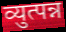
व्युत्पन्न